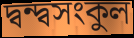
দ্বন্দ্বসংকুল